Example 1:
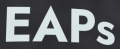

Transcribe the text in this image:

EAPs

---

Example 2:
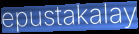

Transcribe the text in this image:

epustakalay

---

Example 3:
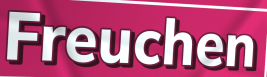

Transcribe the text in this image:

Freuchen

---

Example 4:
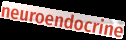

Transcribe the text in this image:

neuroendocrine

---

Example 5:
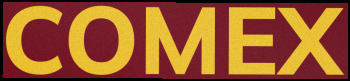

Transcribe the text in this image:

COMEX